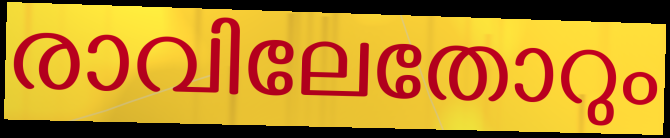
രാവിലേതോറും